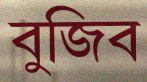
বুজিব